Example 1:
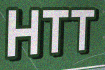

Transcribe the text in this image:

HTT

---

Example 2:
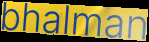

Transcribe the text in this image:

bhalman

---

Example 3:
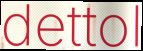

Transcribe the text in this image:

dettol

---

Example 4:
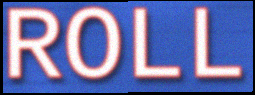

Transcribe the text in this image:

ROLL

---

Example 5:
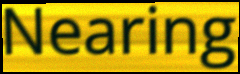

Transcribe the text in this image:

Nearing